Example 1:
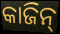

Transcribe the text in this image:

କାଜିନ୍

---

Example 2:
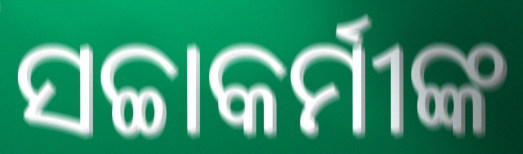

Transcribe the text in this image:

ସଚ୍ଚାକର୍ମୀଙ୍କ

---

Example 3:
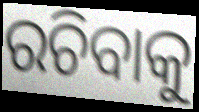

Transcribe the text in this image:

ରଚିବାକୁ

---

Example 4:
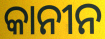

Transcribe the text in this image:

କାନୀନ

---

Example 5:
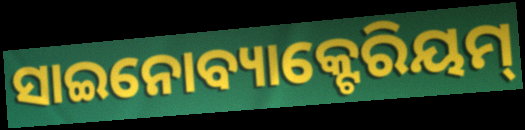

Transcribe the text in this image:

ସାଇନୋବ୍ୟାକ୍ଟେରିୟମ୍